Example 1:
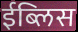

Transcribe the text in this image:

ईब्लिस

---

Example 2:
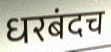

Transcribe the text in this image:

धरबंदच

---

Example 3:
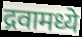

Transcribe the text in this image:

द्रवामध्ये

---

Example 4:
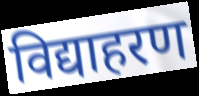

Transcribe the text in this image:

विद्याहरण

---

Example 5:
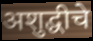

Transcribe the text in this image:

अशुद्धीचे